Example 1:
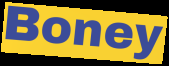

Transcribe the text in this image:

Boney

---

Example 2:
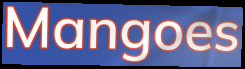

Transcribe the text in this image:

Mangoes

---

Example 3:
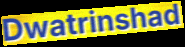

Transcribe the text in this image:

Dwatrinshad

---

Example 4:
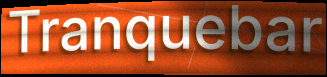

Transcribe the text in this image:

Tranquebar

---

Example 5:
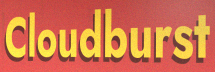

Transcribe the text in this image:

Cloudburst